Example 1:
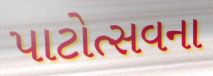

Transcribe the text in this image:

પાટોત્સવના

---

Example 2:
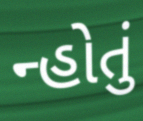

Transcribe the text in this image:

ન્હોતું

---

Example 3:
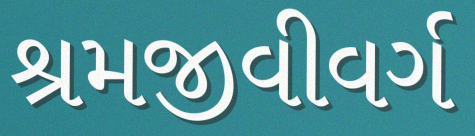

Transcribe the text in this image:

શ્રમજીવીવર્ગ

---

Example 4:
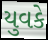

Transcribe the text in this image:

યુવકે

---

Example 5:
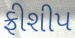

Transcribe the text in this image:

ફ્રીશીપ